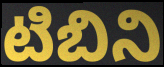
టిబిని